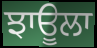
ਝਾਊਲਾ